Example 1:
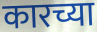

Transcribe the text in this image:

कारच्या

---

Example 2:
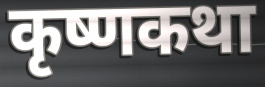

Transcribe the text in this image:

कृष्णकथा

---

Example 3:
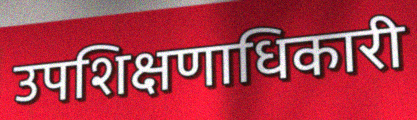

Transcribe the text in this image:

उपशिक्षणाधिकारी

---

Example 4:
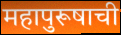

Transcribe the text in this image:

महापुरूषाची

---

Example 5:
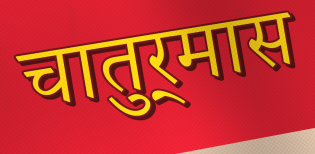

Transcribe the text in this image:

चातुर्मास